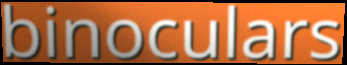
binoculars